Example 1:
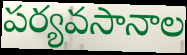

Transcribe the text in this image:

పర్యవసానాల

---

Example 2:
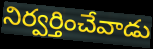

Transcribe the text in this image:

నిర్వర్తించేవాడు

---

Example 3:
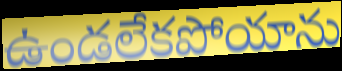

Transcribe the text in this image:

ఉండలేకపోయాను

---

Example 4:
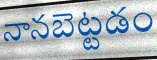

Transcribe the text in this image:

నానబెట్టడం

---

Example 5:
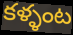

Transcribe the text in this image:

కళ్ళంట